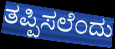
ತಪ್ಪಿಸಲೆಂದು